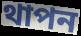
থাপন